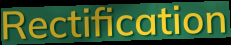
Rectification